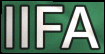
IIFA